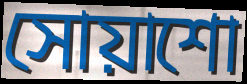
সোয়াশো